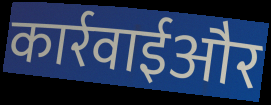
कार्रवाईऔर